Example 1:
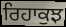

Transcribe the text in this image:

ਰਿਹਾਕੁਝ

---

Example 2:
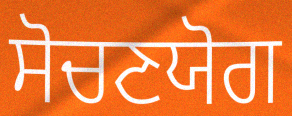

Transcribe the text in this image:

ਸੋਚਣਯੋਗ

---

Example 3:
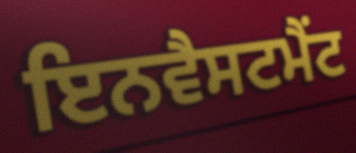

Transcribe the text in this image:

ਇਨਵੈਸਟਮੈਂਟ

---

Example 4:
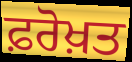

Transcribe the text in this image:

ਫ਼ਰੋਖ਼ਤ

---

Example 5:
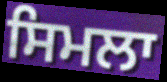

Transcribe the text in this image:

ਸਿਮਲਾ